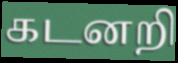
கடனறி